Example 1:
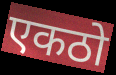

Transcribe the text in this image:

एकठो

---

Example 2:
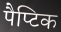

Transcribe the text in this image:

पैप्टिक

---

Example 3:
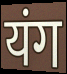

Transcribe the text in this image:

यंग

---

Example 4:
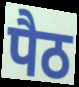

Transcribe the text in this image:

पैठ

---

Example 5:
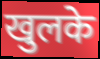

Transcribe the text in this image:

खुलके